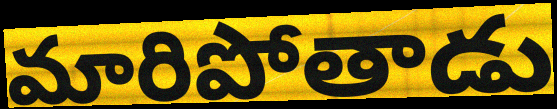
మారిపోతాడు